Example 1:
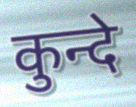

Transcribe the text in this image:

कुन्दे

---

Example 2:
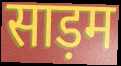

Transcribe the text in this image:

साड़म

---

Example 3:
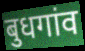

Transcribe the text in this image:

बुधगांव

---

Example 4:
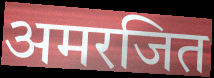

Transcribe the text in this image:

अमरजित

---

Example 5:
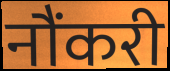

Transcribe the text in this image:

नौंकरी